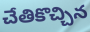
చేతికొచ్చిన